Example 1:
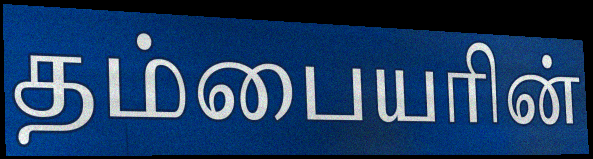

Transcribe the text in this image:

தம்பையரின்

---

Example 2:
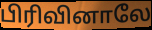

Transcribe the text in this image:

பிரிவினாலே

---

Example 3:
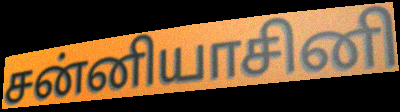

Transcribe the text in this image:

சன்னியாசினி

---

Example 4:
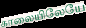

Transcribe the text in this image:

காலையிலேயே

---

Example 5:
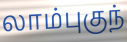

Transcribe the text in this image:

லாம்புகுந்